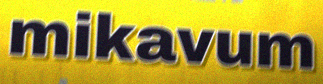
mikavum